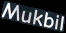
Mukbil